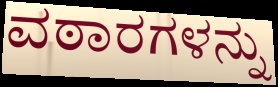
ವಠಾರಗಳನ್ನು